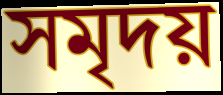
সমৃদয়